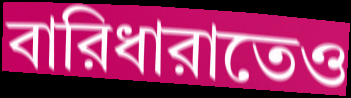
বারিধারাতেও